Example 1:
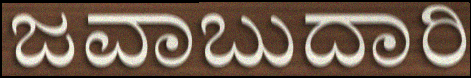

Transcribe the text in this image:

ಜವಾಬುದಾರಿ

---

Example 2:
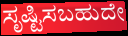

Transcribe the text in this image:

ಸೃಷ್ಟಿಸಬಹುದೇ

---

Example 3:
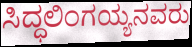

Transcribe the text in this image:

ಸಿದ್ಧಲಿಂಗಯ್ಯನವರು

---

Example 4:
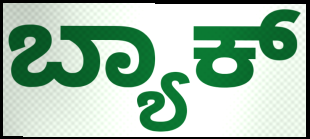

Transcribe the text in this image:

ಬ್ಯಾಕ್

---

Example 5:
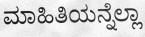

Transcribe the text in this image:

ಮಾಹಿತಿಯನ್ನೆಲ್ಲಾ